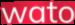
wato